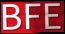
BFE